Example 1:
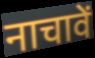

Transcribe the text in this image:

नाचावें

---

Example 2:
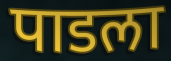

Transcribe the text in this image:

पाडला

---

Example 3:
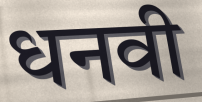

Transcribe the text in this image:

धनवी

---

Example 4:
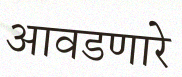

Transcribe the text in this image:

आवडणारे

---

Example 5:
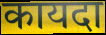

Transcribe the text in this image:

कायदा